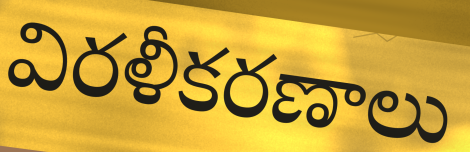
విరళీకరణాలు